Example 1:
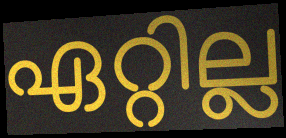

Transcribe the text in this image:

ഏറ്റില്ല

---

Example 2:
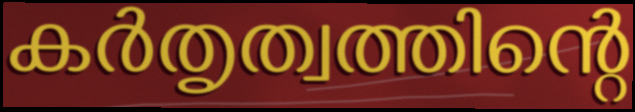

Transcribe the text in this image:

കർതൃത്വത്തിന്റെ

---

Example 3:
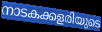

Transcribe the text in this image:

നാടകക്കളരിയുടെ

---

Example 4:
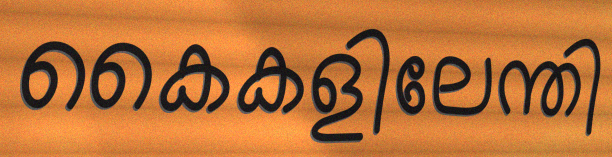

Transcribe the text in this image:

കൈകളിലേന്തി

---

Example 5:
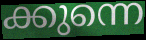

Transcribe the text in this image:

ക്കുന്നെ